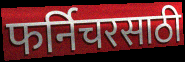
फर्निचरसाठी